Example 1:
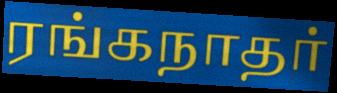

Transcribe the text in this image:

ரங்கநாதர்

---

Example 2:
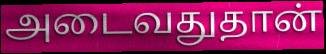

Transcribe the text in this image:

அடைவதுதான்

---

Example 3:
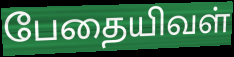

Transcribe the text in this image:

பேதையிவள்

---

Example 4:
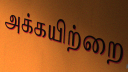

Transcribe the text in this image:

அக்கயிற்றை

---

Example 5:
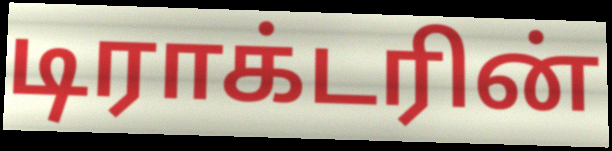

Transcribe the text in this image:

டிராக்டரின்